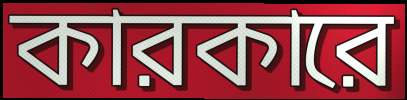
কারকারে